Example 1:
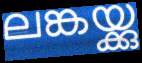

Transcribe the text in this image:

ലങ്കയ്ക്കു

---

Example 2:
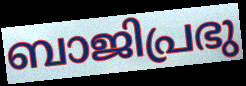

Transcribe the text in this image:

ബാജിപ്രഭു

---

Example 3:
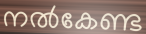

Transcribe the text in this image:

നൽകേണ്ട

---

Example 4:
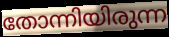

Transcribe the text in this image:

തോന്നിയിരുന്ന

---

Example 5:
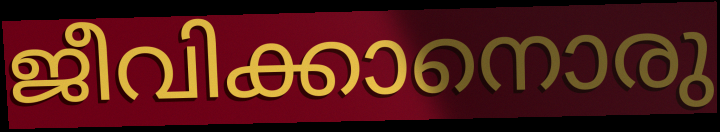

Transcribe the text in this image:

ജീവിക്കാനൊരു